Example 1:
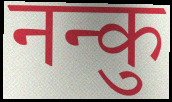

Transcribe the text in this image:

नन्कु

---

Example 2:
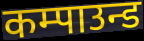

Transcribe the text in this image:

कम्पाउन्ड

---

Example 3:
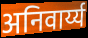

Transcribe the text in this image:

अनिवार्य्य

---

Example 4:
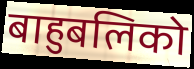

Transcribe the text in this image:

बाहुबलिको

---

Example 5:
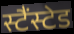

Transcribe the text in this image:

स्टैंस्टेड